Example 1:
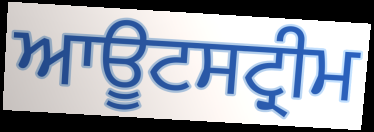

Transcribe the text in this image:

ਆਊਟਸਟ੍ਰੀਮ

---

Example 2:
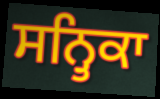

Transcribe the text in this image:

ਸਨ੍ਤਿਕਾ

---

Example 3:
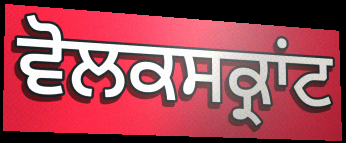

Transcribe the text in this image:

ਵੋਲਕਸਕ੍ਰਾਂਟ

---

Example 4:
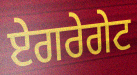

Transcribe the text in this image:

ਏਗਰੇਗੇਟ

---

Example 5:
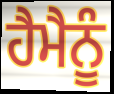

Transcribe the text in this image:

ਹੈਮੈਨੂੰ